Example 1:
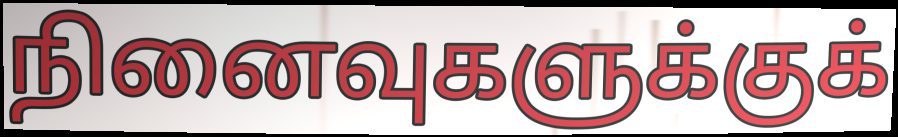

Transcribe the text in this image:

நினைவுகளுக்குக்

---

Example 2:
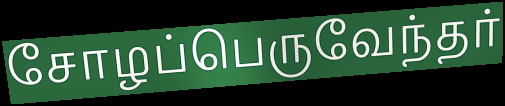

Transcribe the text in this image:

சோழப்பெருவேந்தர்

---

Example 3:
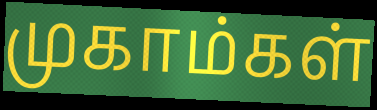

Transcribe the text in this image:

முகாம்கள்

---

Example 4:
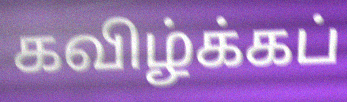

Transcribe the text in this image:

கவிழ்க்கப்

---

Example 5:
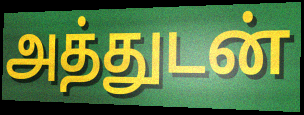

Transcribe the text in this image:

அத்துடன்